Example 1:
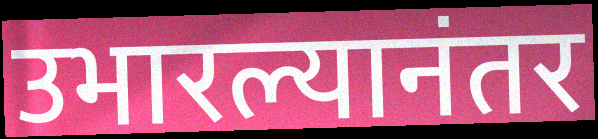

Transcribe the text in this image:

उभारल्यानंतर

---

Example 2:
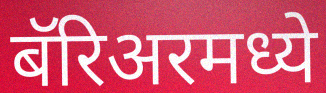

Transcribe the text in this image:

बॅरिअरमध्ये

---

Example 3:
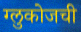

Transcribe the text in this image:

ग्लुकोजची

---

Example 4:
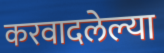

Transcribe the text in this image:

करवादलेल्या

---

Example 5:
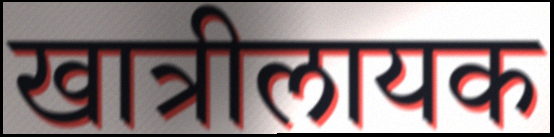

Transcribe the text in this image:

खात्रीलायक